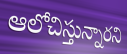
ఆలోచిస్తున్నారని